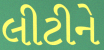
લીટીને